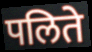
पलिते